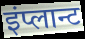
इंप्लान्ट